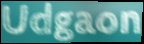
Udgaon